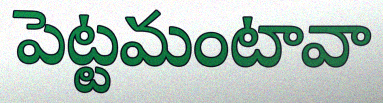
పెట్టమంటావా